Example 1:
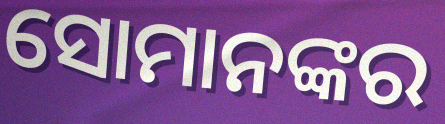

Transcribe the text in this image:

ସୋମାନଙ୍କର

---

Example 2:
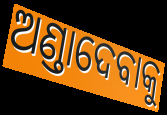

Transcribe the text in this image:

ଅଣ୍ଡାଦେବାକୁ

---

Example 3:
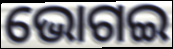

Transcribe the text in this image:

ଭୋଗଇ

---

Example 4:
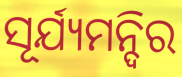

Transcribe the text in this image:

ସୂର୍ଯ୍ୟମନ୍ଦିର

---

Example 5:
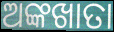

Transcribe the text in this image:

ଅଙ୍କଖାତା